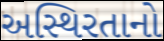
અસ્થિરતાનો